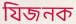
যিজনক